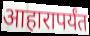
आहारापर्यंत